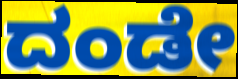
ದಂಡೇ